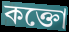
কক্তো